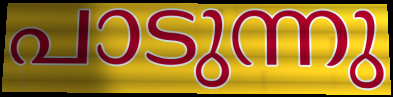
പാടുന്നു